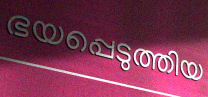
ഭയപ്പെടുത്തിയ